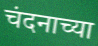
चंदनाच्या